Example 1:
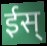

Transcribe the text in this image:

ईस्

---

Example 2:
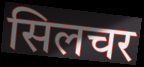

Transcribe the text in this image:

सिलचर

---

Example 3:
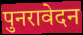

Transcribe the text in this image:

पुनरावेदन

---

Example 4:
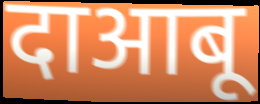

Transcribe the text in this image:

दाआबू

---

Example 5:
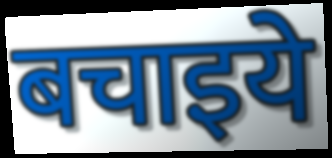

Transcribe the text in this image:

बचाइये